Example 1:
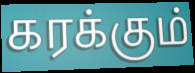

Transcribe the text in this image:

கரக்கும்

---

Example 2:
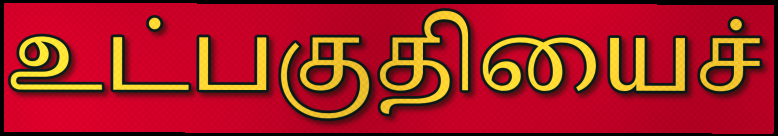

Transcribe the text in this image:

உட்பகுதியைச்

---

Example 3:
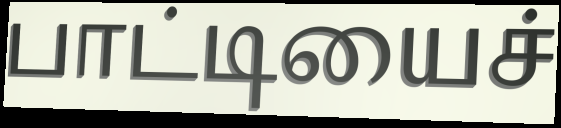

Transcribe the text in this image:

பாட்டியைச்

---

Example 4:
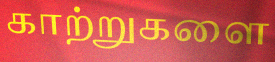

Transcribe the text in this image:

காற்றுகளை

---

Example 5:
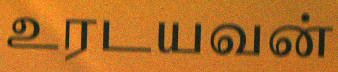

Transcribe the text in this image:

உரடயவன்